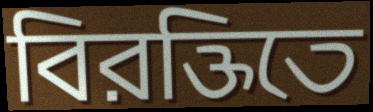
বিরক্তিতে